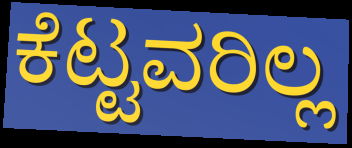
ಕೆಟ್ಟವರಿಲ್ಲ